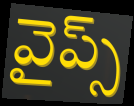
వైప్స్